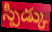
స్పీడ్కు